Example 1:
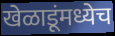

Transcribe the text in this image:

खेळाडूंमध्येच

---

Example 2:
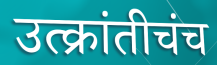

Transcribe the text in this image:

उत्क्रांतीचंच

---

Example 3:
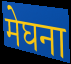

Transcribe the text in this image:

मेघना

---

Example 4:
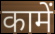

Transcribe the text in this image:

कामें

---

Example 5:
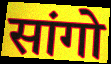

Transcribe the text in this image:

सांगो